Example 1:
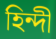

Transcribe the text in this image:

হিন্দী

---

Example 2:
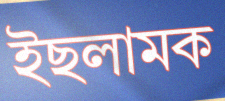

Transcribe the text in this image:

ইছলামক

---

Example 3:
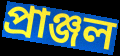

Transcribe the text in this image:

প্ৰাঞ্জল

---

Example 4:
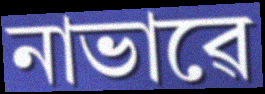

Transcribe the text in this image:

নাভাৱে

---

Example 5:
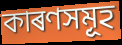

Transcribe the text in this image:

কাৰণসমূহ